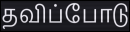
தவிப்போடு